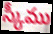
స్కీము